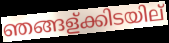
ഞങ്ങള്ക്കിടയില്